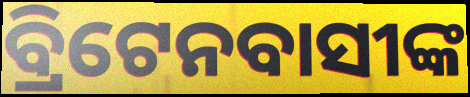
ବ୍ରିଟେନବାସୀଙ୍କ